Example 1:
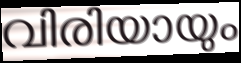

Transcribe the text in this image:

വിരിയായും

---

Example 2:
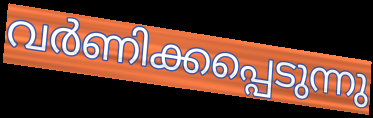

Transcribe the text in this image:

വർണിക്കപ്പെടുന്നു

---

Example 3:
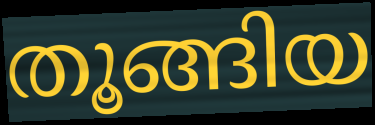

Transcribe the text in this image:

തൂങ്ങിയ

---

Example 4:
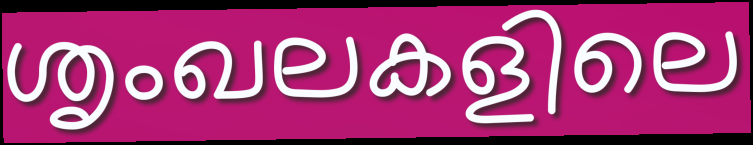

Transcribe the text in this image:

ശൃംഖലകളിലെ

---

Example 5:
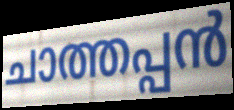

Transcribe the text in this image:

ചാത്തപ്പൻ